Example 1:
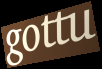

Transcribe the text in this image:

gottu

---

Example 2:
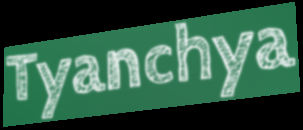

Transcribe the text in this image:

Tyanchya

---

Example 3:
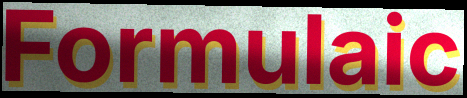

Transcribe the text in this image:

Formulaic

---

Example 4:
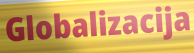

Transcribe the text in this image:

Globalizacija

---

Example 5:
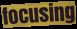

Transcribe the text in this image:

focusing